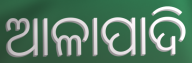
ଆଳାପାଦି